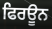
ਫਿਰਊਨ